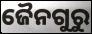
ଜୈନଗୁରୁ